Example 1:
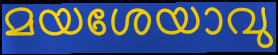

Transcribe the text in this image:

മയശേയാവു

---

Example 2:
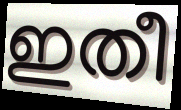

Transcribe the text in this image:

ഇതീ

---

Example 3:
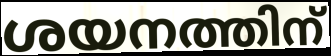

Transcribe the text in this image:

ശയനത്തിന്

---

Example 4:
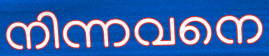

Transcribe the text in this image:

നിന്നവനെ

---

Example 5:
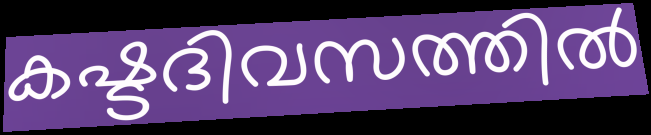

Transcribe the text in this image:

കഷ്ടദിവസത്തിൽ